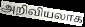
அறிவியலாக